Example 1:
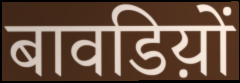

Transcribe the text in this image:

बावडिय़ों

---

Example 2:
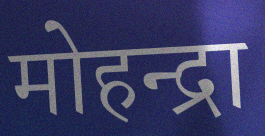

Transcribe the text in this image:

मोहन्द्रा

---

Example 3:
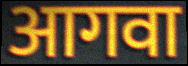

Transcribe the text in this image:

आगवा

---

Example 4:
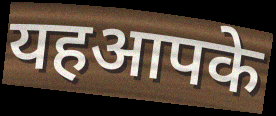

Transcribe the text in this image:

यहआपके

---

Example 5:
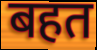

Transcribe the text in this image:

बहत